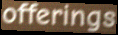
offerings